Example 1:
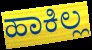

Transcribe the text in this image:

ಹಾಕಿಲ್ಲ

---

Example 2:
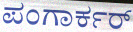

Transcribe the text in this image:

ಪಂಗಾರ್ಕರ್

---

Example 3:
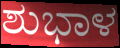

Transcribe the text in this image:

ಶುಭಾಳ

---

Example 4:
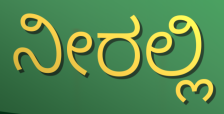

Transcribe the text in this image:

ನೀರಲ್ಲಿ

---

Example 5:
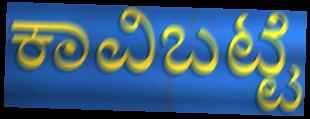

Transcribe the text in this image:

ಕಾವಿಬಟ್ಟೆ